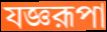
যজ্ঞরূপা